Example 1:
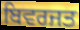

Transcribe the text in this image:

ਬਿਵਰਜਤ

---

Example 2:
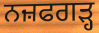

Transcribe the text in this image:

ਨਜ਼ਫਗੜ੍ਹ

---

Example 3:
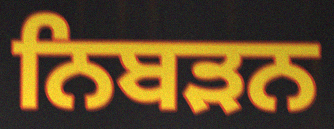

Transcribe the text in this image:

ਨਿਬੜਨ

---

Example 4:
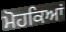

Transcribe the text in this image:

ਮੋਹਕਿਆਂ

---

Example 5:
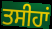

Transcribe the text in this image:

ਤਸੀਹਾਂ